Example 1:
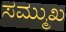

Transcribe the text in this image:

ಸಮ್ಮುಖ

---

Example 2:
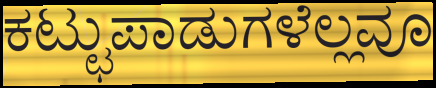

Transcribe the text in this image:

ಕಟ್ಟುಪಾಡುಗಳೆಲ್ಲವೂ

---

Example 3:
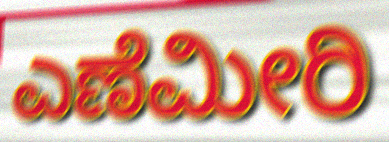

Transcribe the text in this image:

ಎಣೆಮೀರಿ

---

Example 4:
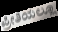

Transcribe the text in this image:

ಪ್ರೀತಿಯಲ್ಲೂ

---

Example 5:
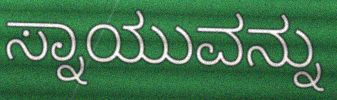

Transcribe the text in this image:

ಸ್ನಾಯುವನ್ನು